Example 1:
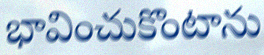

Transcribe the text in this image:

భావించుకొంటాను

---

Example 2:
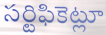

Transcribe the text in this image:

సర్టిఫికెట్లూ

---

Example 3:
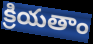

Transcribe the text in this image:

క్రియతాం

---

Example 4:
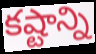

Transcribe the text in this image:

కష్టాన్ని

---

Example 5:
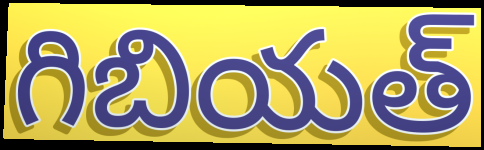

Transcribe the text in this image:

గిబియత్